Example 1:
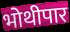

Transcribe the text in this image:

भोथीपार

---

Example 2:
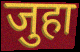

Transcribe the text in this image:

जुहा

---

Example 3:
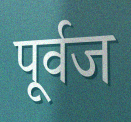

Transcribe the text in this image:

पूर्वज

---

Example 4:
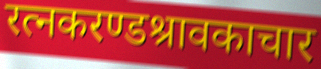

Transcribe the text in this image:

रत्नकरण्डश्रावकाचार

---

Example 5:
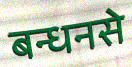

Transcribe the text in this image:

बन्धनसे